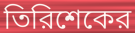
তিরিশেকের